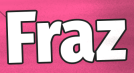
Fraz